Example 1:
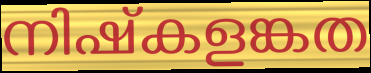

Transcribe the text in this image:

നിഷ്‌കളങ്കത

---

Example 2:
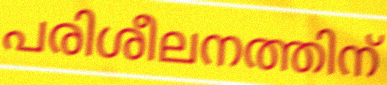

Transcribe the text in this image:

പരിശീലനത്തിന്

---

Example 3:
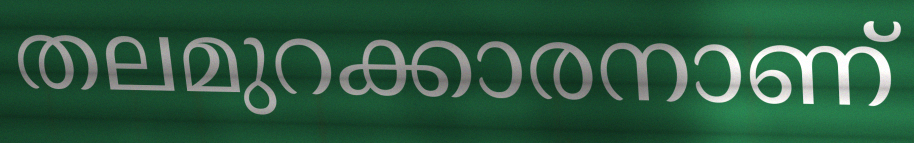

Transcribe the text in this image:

തലമുറക്കാരനാണ്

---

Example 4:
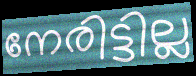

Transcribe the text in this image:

നേരിട്ടില്ല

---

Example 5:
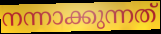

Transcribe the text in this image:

നന്നാക്കുന്നത്